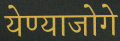
येण्याजोगे